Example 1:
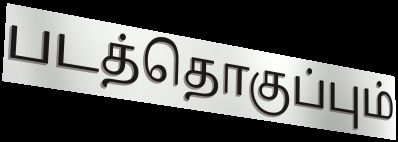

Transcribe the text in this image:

படத்தொகுப்பும்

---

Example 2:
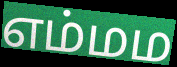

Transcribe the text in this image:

எம்மம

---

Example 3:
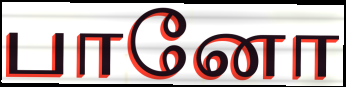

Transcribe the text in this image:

பானோ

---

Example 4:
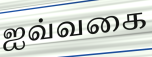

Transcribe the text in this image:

ஐவ்வகை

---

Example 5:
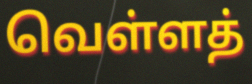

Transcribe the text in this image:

வெள்ளத்